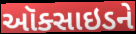
ઑક્સાઇડને